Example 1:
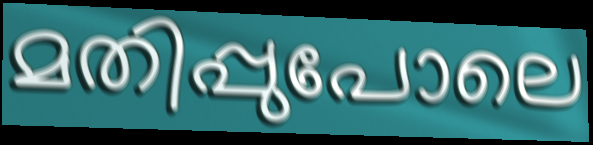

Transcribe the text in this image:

മതിപ്പുപോലെ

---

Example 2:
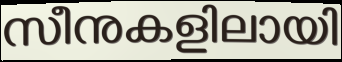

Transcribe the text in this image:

സീനുകളിലായി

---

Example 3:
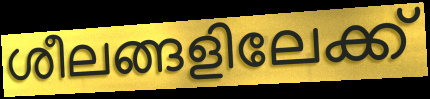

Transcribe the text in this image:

ശീലങ്ങളിലേക്ക്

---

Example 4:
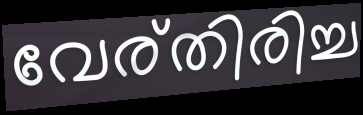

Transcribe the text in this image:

വേര്തിരിച്ച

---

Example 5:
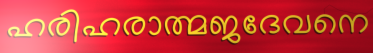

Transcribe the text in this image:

ഹരിഹരാത്മജദേവനെ